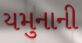
યમુનાની